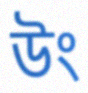
উং